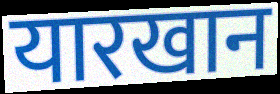
यारखान